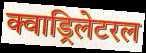
क्वाड्रिलेटरल